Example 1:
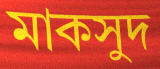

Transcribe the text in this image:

মাকসুদ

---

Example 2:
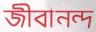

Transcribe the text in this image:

জীবানন্দ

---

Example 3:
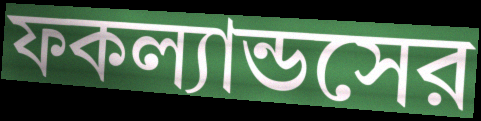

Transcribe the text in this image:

ফকল্যান্ডসের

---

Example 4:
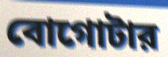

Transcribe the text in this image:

বোগোটার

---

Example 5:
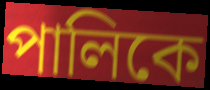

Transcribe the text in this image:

পালিকে